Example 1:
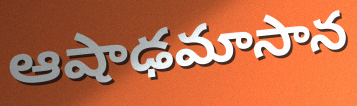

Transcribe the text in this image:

ఆషాఢమాసాన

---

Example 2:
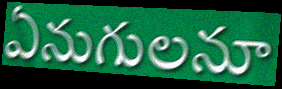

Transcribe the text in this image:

ఏనుగులనూ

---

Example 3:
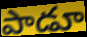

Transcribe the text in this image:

పాడూ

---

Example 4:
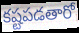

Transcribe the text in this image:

కష్టపడతారో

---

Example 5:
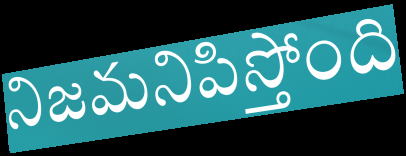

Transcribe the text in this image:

నిజమనిపిస్తోంది